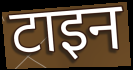
टाइन